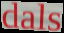
dals